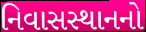
નિવાસસ્થાનનો